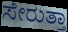
ಸೇರುತ್ತಾ